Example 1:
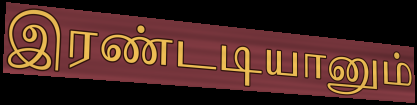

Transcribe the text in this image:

இரண்டடியானும்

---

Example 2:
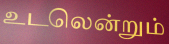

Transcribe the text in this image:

உடலென்றும்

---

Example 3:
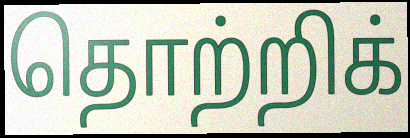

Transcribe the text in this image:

தொற்றிக்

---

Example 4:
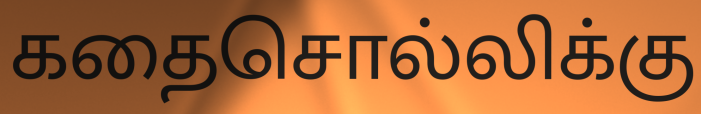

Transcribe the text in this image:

கதைசொல்லிக்கு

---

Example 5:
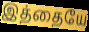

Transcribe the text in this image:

இத்தையே